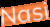
Nasi